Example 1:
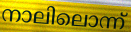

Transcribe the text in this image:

നാലിലൊന്ന്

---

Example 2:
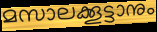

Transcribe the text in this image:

മസാലക്കൂട്ടാനും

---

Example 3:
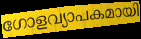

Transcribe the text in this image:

ഗോളവ്യാപകമായി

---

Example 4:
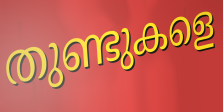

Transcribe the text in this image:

തുണ്ടുകളെ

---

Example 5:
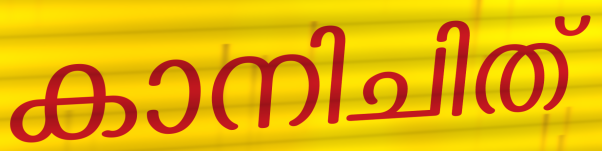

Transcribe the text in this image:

കാനിചിത്